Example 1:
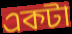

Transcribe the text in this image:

একটা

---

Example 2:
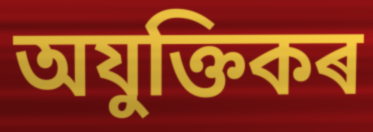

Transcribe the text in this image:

অযুক্তিকৰ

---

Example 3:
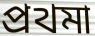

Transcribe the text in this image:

প্ৰথমা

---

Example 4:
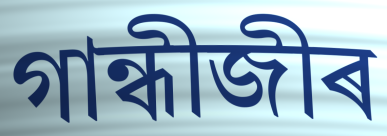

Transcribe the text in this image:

গান্ধীজীৰ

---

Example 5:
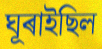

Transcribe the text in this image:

ঘূৰাইছিল